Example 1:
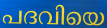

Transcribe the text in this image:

പദവിയെ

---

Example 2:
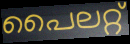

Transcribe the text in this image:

പൈലറ്റ്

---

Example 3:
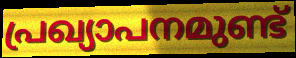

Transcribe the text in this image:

പ്രഖ്യാപനമുണ്ട്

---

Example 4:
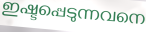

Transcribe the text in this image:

ഇഷ്ടപ്പെടുന്നവനെ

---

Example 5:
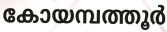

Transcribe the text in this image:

കോയമ്പത്തൂർ